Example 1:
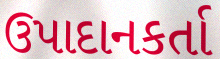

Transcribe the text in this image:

ઉપાદાનકર્તા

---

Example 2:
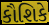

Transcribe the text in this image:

કૌશિકે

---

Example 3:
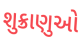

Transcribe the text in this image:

શુક્રાણુઓ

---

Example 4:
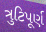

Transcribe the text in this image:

ત્રુટિપૂર્ણ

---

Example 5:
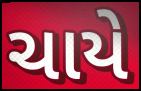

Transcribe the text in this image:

ચાયે